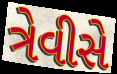
ત્રેવીસે